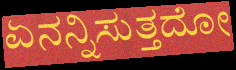
ಏನನ್ನಿಸುತ್ತದೋ